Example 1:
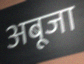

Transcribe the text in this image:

अबूजा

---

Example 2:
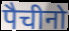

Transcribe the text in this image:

पैचीनो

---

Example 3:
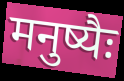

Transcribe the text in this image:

मनुष्यैः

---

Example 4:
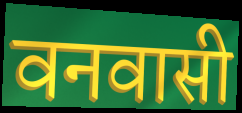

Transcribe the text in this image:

वनवासी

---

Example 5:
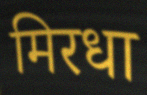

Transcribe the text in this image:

मिरधा